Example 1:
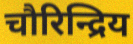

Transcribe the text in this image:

चौरिन्द्रिय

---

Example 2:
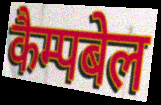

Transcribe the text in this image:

कैम्पबेल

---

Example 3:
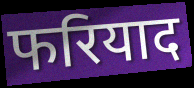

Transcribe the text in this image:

फरियाद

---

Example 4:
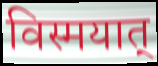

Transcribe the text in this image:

विस्मयात्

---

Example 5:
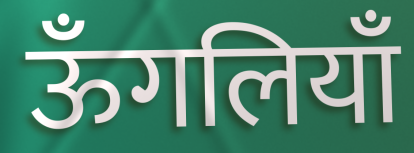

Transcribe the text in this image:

ऊँगलियाँ